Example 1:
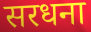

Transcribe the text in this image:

सरधना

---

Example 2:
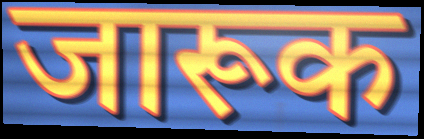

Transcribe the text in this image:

जारूक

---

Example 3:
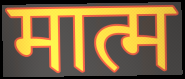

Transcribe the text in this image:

मात्म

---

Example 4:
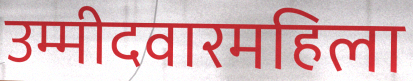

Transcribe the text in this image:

उम्मीदवारमहिला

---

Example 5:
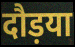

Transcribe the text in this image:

दौड़या